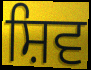
ਸ਼ਿਵ